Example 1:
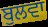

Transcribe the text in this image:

ਬੁਲਵਾ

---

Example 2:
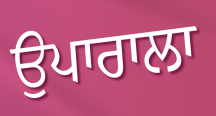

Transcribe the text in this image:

ਉਪਾਰਾਲਾ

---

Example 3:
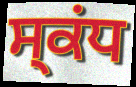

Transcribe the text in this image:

ਸ੍ਕਂਧ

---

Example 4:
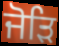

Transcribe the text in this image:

ਜੋੜਿ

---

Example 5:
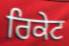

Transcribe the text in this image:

ਰਿਕੇਟ